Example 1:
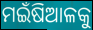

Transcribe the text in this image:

ମଇଁଷିଆଳକୁ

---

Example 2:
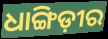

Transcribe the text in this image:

ଧାଙ୍ଗିଡ଼ୀର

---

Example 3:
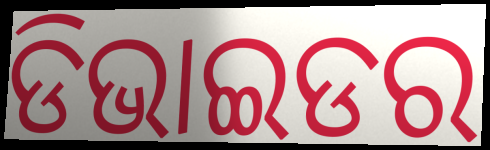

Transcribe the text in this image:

ଡିଭାଇଡର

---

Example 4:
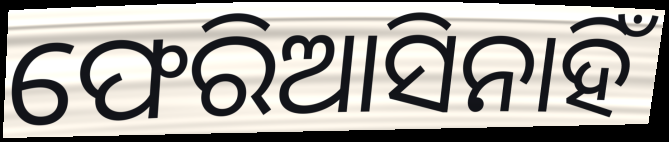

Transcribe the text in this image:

ଫେରିଆସିନାହିଁ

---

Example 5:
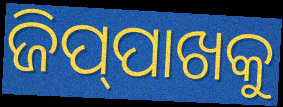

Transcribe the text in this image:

ଜିପ୍‌ପାଖକୁ